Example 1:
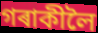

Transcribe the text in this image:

গৰাকীলৈ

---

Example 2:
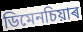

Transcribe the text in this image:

ডিমেনচিয়াৰ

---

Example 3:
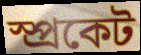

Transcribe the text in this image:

স্প্ৰকেট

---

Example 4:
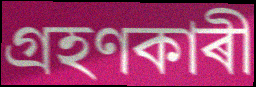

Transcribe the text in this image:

গ্ৰহণকাৰী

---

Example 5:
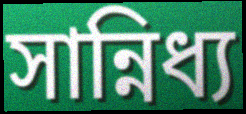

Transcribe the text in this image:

সান্নিধ্য